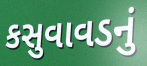
કસુવાવડનું